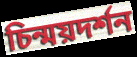
চিন্ময়দর্শন